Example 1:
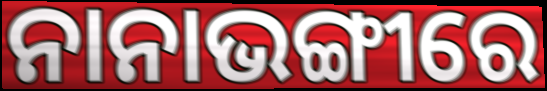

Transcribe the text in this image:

ନାନାଭଙ୍ଗୀରେ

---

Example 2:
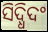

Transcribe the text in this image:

ସିଦ୍ଧିଦଂ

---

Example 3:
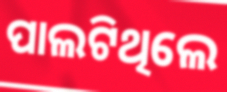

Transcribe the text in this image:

ପାଲଟିଥିଲେ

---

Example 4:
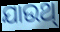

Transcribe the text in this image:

ଯାଉଥ୍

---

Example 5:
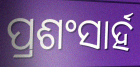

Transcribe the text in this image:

ପ୍ରଶଂସାର୍ହ